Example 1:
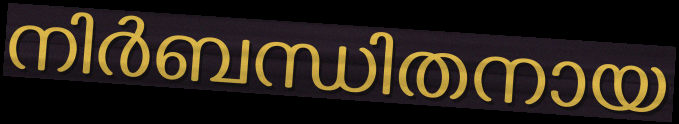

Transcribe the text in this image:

നിർബന്ധിതനായ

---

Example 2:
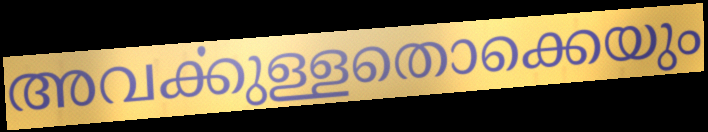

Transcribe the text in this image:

അവൎക്കുള്ളതൊക്കെയും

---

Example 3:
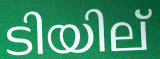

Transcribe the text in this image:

ടിയില്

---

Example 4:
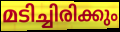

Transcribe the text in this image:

മടിച്ചിരിക്കും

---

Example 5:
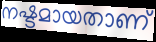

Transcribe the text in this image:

നഷ്ടമായതാണ്